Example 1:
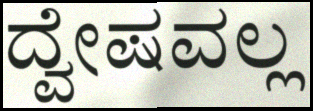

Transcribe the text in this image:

ದ್ವೇಷವಲ್ಲ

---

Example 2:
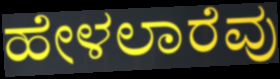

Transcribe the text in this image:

ಹೇಳಲಾರೆವು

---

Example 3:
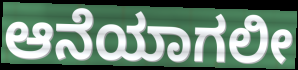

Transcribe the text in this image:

ಆನೆಯಾಗಲೀ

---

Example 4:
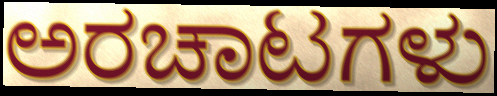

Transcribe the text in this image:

ಅರಚಾಟಗಳು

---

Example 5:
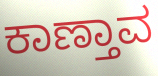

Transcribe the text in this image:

ಕಾಣ್ತಾವ